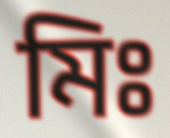
মিঃ